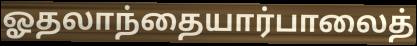
ஓதலாந்தையார்பாலைத்